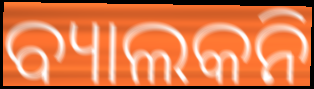
ବ୍ୟାଲକନି